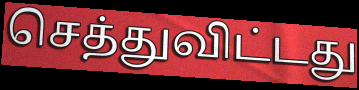
செத்துவிட்டது